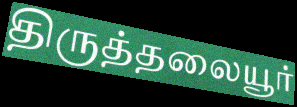
திருத்தலையூர்